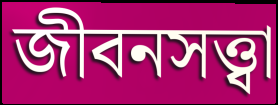
জীবনসত্ত্বা